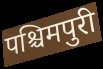
पश्चिमपुरी